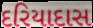
દરિયાદાસ